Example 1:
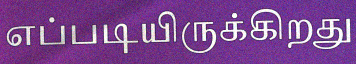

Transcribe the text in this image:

எப்படியிருக்கிறது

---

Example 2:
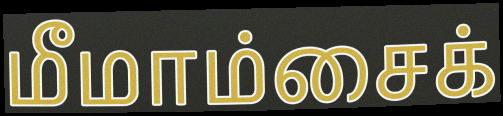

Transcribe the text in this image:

மீமாம்சைக்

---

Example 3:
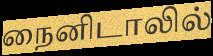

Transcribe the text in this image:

நைனிடாலில்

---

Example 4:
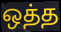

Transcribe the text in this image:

ஒத்த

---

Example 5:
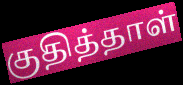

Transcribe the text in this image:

குதித்தாள்